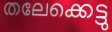
തലേക്കെട്ടു